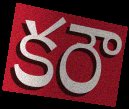
కరౌ